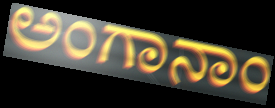
ಅಂಗಾನಾಂ